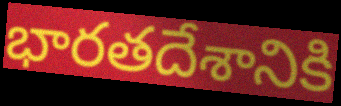
భారతదేశానికి